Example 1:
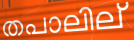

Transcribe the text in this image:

തപാലില്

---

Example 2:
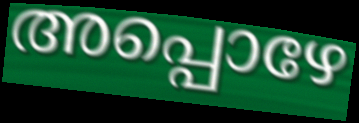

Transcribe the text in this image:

അപ്പൊഴേ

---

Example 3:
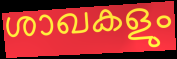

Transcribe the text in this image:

ശാഖകളും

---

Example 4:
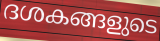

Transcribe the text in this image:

ദശകങ്ങളുടെ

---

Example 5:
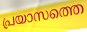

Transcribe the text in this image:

പ്രയാസത്തെ